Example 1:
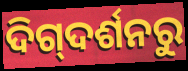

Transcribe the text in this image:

ଦିଗ୍‌ଦର୍ଶନରୁ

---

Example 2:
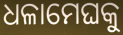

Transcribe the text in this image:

ଧଳାମେଘକୁ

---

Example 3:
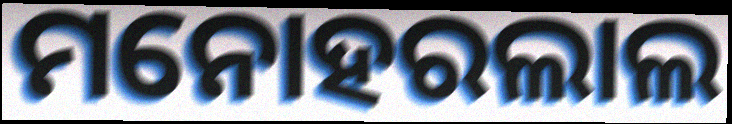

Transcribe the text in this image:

ମନୋହରଲାଲ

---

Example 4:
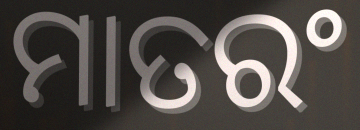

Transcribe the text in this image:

ମାତରଂ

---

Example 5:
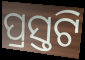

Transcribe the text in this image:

ପ୍ରସ୍ତଟି